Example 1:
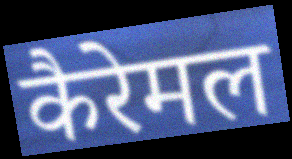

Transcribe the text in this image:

कैरेमल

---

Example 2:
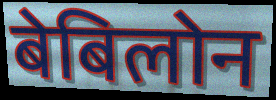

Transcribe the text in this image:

बेबिलोन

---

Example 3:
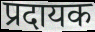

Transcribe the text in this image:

प्रदायक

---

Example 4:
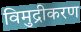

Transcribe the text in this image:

विमुद्रीकरण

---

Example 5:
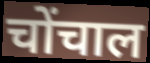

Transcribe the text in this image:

चोंचाल